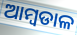
ଆମ୍ବଡାଳ